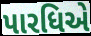
પારધિએ